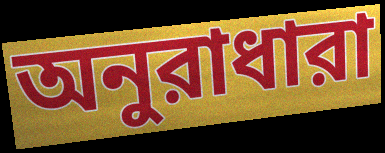
অনুরাধারা